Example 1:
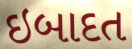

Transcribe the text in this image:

ઇબાદત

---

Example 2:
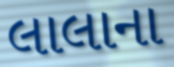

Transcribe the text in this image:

લાલાના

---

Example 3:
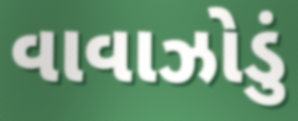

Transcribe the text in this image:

વાવાઝોડું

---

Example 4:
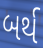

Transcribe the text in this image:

બર્થ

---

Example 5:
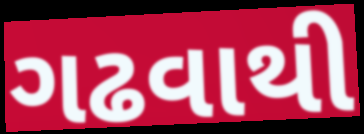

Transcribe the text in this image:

ગઢવાથી